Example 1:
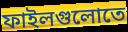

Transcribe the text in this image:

ফাইলগুলোতে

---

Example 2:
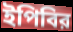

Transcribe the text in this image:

ইপিবির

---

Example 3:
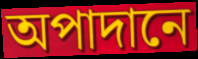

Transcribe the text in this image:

অপাদানে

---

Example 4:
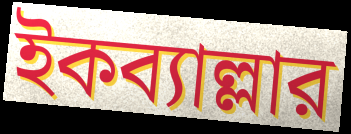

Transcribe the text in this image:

ইকব্যাল্লার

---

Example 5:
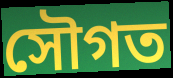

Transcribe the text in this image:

সৌগত